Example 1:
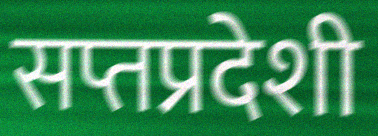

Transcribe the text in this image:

सप्तप्रदेशी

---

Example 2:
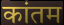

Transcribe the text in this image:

कांतम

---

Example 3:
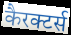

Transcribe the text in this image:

कैरक्टर्स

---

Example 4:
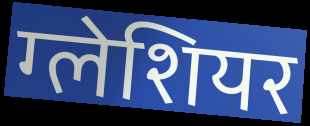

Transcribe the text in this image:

ग्लेशियर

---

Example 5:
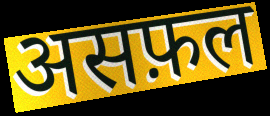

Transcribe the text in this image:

असफ़ल